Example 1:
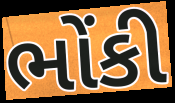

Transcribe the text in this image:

ભોંકી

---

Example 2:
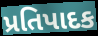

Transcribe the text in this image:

પ્રતિપાદક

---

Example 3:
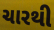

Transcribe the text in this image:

ચારથી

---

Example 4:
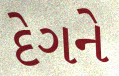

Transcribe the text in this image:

દેગને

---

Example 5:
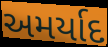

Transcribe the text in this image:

અમર્યાદ